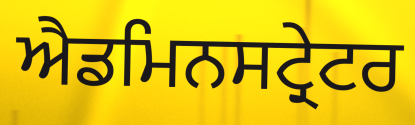
ਐਡਮਿਨਸਟ੍ਰੇਟਰ